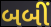
બબીં